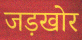
जड़खोर